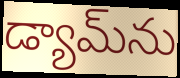
డ్యామ్‌ను